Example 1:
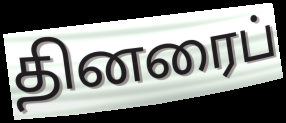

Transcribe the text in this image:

தினரைப்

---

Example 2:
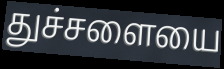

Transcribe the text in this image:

துச்சளையை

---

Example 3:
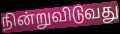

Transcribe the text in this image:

நின்றுவிடுவது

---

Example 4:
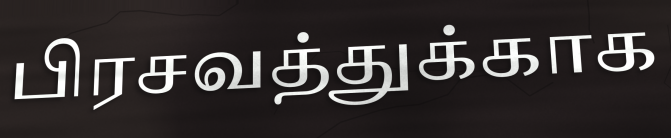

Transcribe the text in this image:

பிரசவத்துக்காக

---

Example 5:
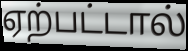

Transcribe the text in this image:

ஏற்பட்டால்